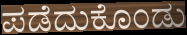
ಪಡೆದುಕೊಂಡು